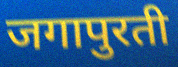
जगापुरती